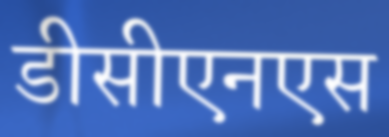
डीसीएनएस